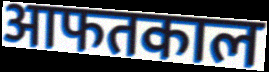
आफतकाल